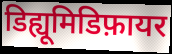
डिह्यूमिडिफ़ायर